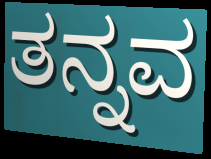
ತನ್ನವ